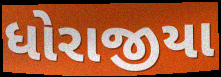
ધોરાજીયા